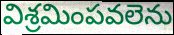
విశ్రమింపవలెను